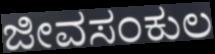
ಜೀವಸಂಕುಲ